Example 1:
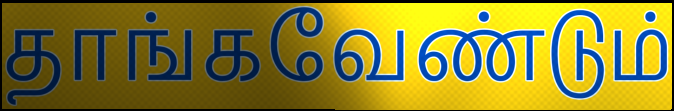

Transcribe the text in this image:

தாங்கவேண்டும்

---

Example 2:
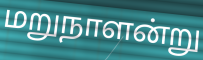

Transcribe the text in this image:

மறுநாளன்று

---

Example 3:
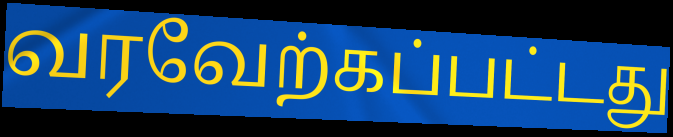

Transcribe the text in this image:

வரவேற்கப்பட்டது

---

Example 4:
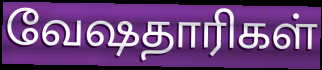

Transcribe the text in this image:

வேஷதாரிகள்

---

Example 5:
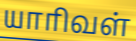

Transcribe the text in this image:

யாரிவள்